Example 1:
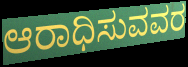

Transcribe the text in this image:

ಆರಾಧಿಸುವವರ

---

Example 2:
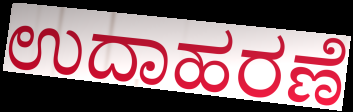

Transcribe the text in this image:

ಉದಾಹರಣೆ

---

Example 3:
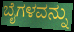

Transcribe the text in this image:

ಬೈಗಳವನ್ನು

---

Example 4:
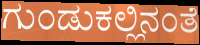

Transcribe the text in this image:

ಗುಂಡುಕಲ್ಲಿನಂತೆ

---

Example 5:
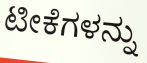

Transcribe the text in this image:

ಟೀಕೆಗಳನ್ನು